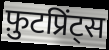
फ़ुटप्रिंट्स